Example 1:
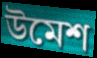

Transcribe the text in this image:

উমেশ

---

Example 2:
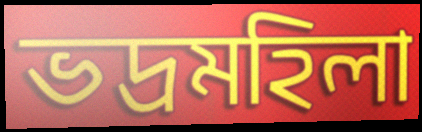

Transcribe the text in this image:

ভদ্ৰমহিলা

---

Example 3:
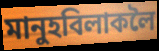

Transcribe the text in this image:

মানুহবিলাকলৈ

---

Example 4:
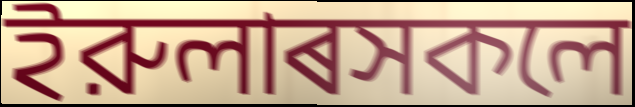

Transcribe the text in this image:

ইৰুলাৰসকলে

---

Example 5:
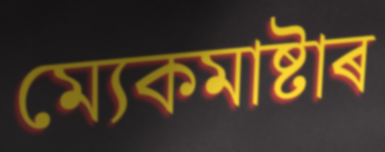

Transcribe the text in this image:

ম্যেকমাষ্টাৰ